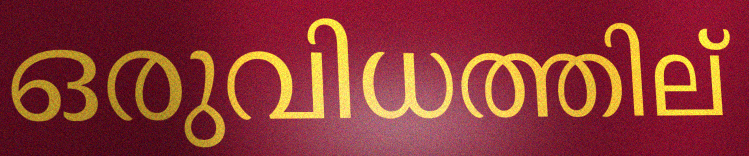
ഒരുവിധത്തില്